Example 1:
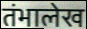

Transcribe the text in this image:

तंभालेख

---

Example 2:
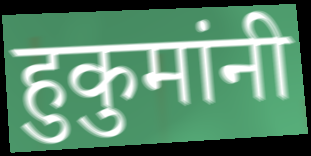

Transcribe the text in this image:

हुकुमांनी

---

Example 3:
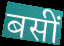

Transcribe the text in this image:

बसीं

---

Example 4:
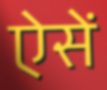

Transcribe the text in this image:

ऐसें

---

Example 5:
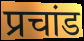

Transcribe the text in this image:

प्रचांड